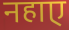
नहाए